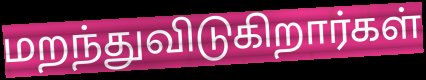
மறந்துவிடுகிறார்கள்